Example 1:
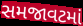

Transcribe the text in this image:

સમજાવટમાં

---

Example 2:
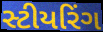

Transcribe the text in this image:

સ્ટીયરિંગ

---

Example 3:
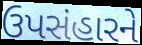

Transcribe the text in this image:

ઉપસંહારને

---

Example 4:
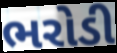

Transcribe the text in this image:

ભરોડી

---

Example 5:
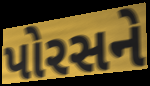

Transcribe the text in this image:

પોરસને